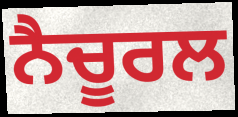
ਨੈਚੂਰਲ